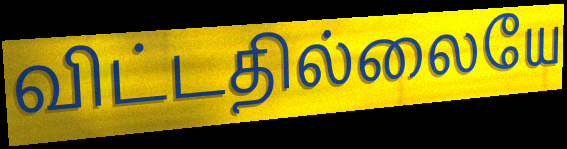
விட்டதில்லையே